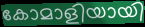
കോമാളിയായി